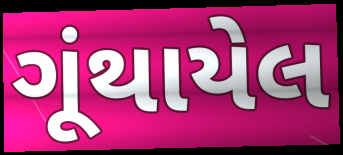
ગૂંથાયેલ